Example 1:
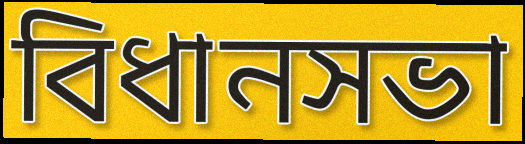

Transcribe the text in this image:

বিধানসভা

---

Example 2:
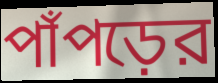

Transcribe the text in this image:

পাঁপড়ের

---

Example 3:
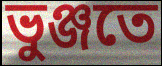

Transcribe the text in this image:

ভুঞ্জতে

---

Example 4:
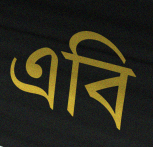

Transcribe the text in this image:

এবি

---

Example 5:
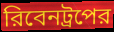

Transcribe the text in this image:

রিবেনট্রপের